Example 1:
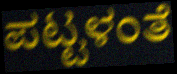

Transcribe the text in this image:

ಪಟ್ಟಳಂತೆ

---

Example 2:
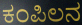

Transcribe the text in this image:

ಕಂಪಿಲನ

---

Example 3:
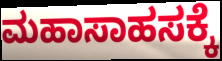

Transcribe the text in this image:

ಮಹಾಸಾಹಸಕ್ಕೆ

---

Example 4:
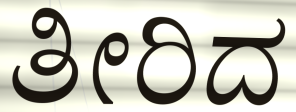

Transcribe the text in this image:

ತೀರಿದ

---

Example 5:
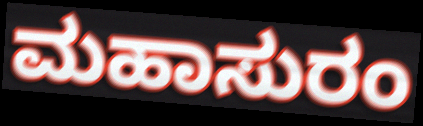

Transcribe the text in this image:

ಮಹಾಸುರಂ